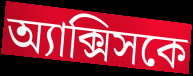
অ্যাক্সিসকে